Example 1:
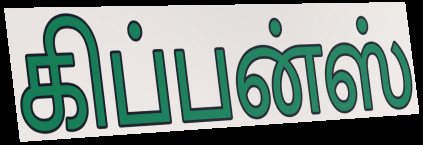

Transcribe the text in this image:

கிப்பன்ஸ்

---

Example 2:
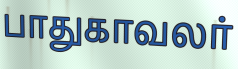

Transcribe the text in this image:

பாதுகாவலர்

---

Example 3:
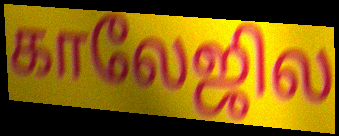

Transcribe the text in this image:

காலேஜில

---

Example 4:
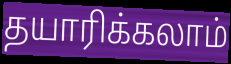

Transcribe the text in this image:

தயாரிக்கலாம்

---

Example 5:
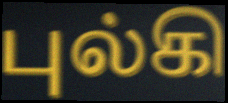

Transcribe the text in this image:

புல்கி